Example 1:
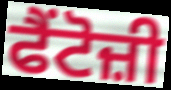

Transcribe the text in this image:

ਫੈਂਟੋਜ਼ੀ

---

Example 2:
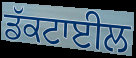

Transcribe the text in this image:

ਡੱਕਟਾਈਲ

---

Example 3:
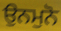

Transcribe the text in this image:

ਉਨਮੁਨੋ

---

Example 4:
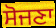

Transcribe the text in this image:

ਸੋਜਣਾ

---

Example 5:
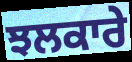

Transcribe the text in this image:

ਝਲਕਾਰੇ